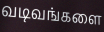
வடிவங்களை